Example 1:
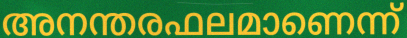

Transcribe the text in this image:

അനന്തരഫലമാണെന്ന്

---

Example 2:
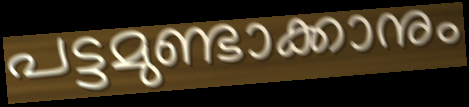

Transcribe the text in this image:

പട്ടമുണ്ടാക്കാനും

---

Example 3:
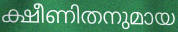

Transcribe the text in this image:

ക്ഷീണിതനുമായ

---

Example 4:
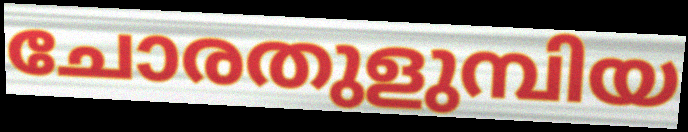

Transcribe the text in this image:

ചോരതുളുമ്പിയ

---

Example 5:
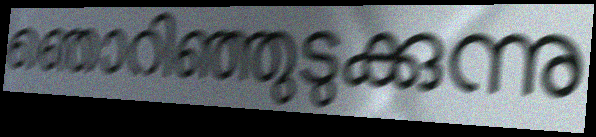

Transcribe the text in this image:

ഞൊറിഞ്ഞുടുക്കുന്നു